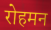
रोहमन